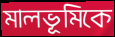
মালভূমিকে